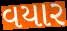
વયાર